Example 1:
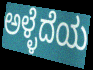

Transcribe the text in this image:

ಅಳ್ಳೆದೆಯ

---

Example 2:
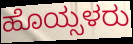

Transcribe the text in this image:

ಹೊಯ್ಸಳರು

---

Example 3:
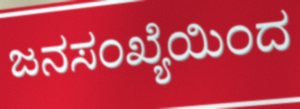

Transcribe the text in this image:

ಜನಸಂಖ್ಯೆಯಿಂದ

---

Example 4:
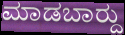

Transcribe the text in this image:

ಮಾಡಬಾರ್‍ದು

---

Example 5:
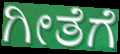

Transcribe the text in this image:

ಗೀತೆಗೆ